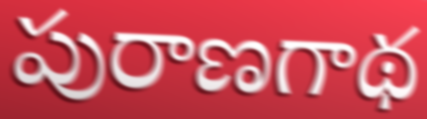
పురాణగాథ